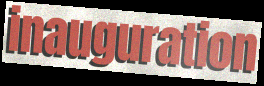
inauguration